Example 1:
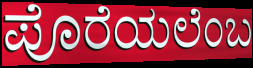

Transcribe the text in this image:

ಪೊರೆಯಲೆಂಬ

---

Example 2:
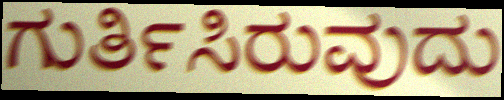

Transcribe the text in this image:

ಗುರ್ತಿಸಿರುವುದು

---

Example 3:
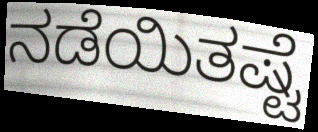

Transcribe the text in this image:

ನಡೆಯಿತಷ್ಟೆ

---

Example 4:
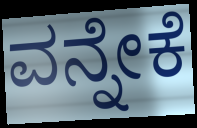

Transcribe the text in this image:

ವನ್ನೇಕೆ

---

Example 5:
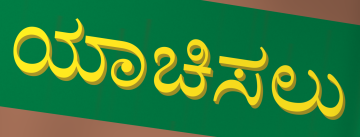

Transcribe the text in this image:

ಯಾಚಿಸಲು